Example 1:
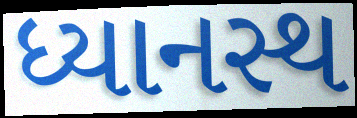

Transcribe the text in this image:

ધ્યાનસ્થ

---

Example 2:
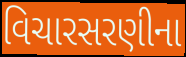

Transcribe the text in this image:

વિચારસરણીના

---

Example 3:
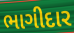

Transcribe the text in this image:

ભાગીદાર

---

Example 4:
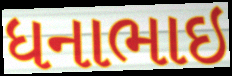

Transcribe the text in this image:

ધનાભાઇ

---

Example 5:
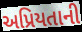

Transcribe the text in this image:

અપ્રિયતાની